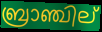
ബ്രാഞ്ചില്